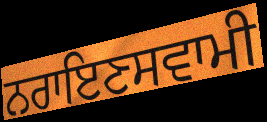
ਨਰਾਇਣਸਵਾਮੀ